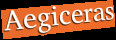
Aegiceras